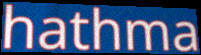
hathma